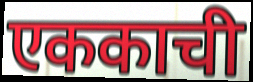
एककाची